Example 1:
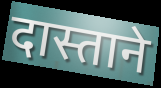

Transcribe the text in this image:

दास्ताने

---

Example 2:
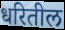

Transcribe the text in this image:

धरितील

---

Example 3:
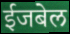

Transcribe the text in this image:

ईजबेल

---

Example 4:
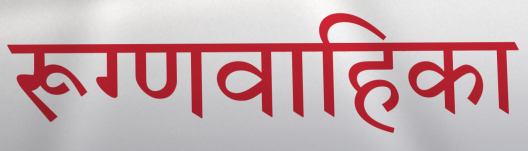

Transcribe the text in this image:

रूग्णवाहिका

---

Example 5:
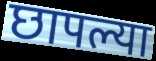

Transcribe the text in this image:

छापल्या